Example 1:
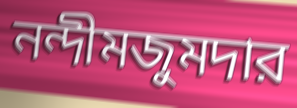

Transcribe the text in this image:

নন্দীমজুমদার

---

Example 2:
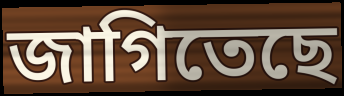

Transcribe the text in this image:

জাগিতেছে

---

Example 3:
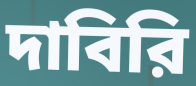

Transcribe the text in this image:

দাবিরি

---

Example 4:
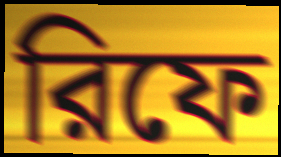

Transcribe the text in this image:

রিফে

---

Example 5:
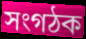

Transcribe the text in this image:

সংগঠক